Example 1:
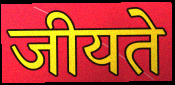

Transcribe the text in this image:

जीयते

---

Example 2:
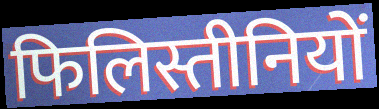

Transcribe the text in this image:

फिलिस्तीनियों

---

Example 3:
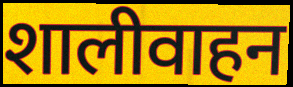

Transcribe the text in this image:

शालीवाहन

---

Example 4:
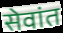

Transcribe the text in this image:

सेवांत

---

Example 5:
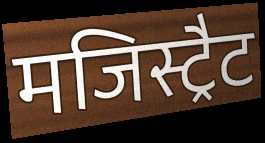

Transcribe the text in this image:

मजिस्ट्रैट